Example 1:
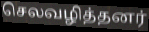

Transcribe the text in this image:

செலவழித்தனர்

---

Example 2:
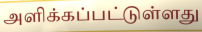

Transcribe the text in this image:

அளிக்கப்பட்டுள்ளது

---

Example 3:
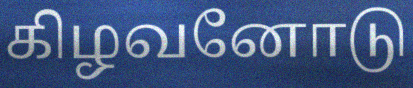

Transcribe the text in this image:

கிழவனோடு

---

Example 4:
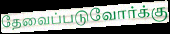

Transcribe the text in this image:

தேவைப்படுவோர்க்கு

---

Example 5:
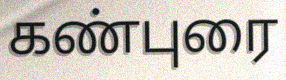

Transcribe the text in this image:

கண்புரை